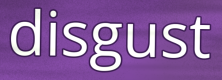
disgust